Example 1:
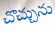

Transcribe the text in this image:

చొచ్చును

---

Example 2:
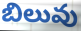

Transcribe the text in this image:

బిలువు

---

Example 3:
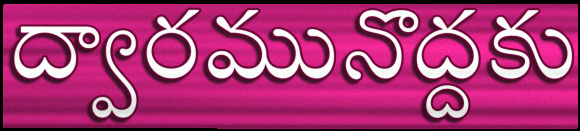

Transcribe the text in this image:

ద్వారమునొద్దకు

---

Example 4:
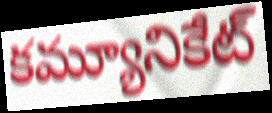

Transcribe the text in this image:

కమ్యూనికేట్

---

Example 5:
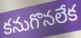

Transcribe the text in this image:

కనుగొనలేక